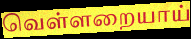
வெள்ளறையாய்